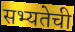
सभ्यतेची